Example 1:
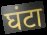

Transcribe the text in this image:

घंटा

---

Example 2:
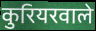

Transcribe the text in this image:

कुरियरवाले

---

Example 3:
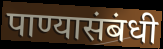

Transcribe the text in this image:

पाण्यासंबंधी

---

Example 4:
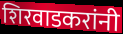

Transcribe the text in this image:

शिरवाडकरांनी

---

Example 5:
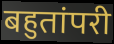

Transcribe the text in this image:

बहुतांपरी